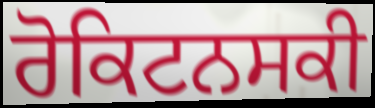
ਰੋਕਿਟਨਸਕੀ